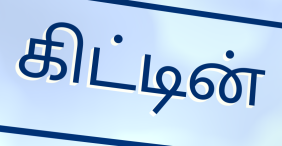
கிட்டின்